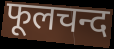
फूलचन्द